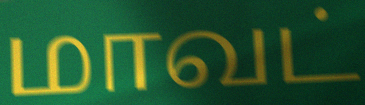
மாவட்